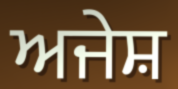
ਅਜੇਸ਼